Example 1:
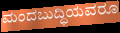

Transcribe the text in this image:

ಮಂದಬುದ್ಧಿಯವರೂ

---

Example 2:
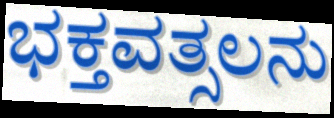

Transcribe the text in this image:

ಭಕ್ತವತ್ಸಲನು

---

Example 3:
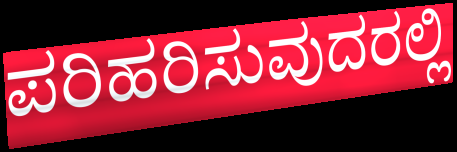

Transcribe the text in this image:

ಪರಿಹರಿಸುವುದರಲ್ಲಿ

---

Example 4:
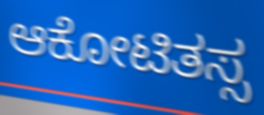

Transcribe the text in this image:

ಆಕೋಟಿತಸ್ಸ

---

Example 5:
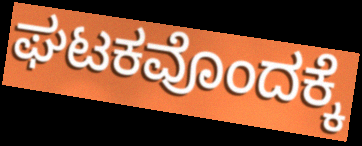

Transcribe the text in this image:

ಘಟಕವೊಂದಕ್ಕೆ